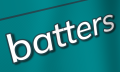
batters